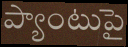
ప్యాంటుపై